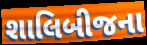
શાલિબીજના